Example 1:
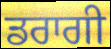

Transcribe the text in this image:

ਡਰਾਗੀ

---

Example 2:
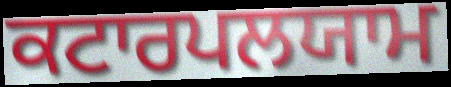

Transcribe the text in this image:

ਕਟਾਰਪਲਯਾਮ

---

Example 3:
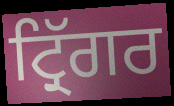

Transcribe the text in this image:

ਟ੍ਰਿੱਗਰ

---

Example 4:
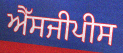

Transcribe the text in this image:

ਐੱਸਜੀਪੀਸ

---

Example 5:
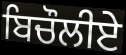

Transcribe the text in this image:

ਬਿਚੌਲੀਏ